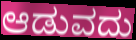
ಆಡುವದು